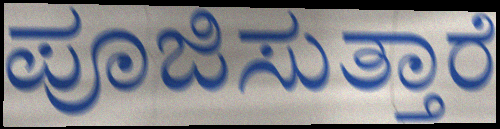
ಪೂಜಿಸುತ್ತಾರೆ